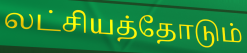
லட்சியத்தோடும்